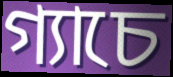
গ্যাচে